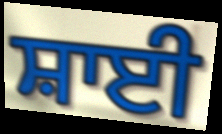
ਸ਼ਾਈ